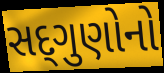
સદ્‌ગુણોનો